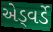
એડ્વર્ડે